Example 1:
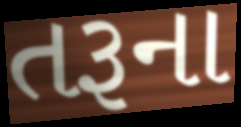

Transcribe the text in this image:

તરૂના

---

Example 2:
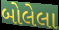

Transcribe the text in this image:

બોલેલા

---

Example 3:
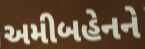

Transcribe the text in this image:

અમીબહેનને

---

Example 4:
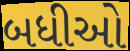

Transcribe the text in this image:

બધીઓ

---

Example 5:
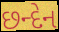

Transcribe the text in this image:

છન્દેન